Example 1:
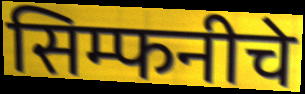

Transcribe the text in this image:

सिम्फनीचे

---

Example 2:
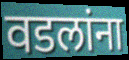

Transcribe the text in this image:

वडलांना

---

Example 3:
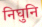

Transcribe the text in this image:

निघुनि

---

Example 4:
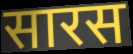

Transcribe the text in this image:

सारस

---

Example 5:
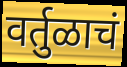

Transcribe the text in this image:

वर्तुळाचं